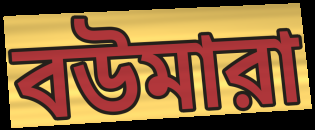
বউমারা